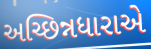
અચ્છિન્નધારાએ